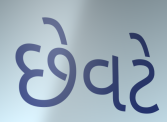
છેવટે